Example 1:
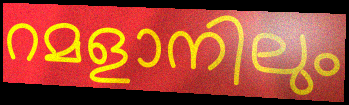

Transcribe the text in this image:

റമളാനിലും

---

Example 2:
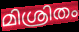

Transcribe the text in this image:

മിശ്രിതം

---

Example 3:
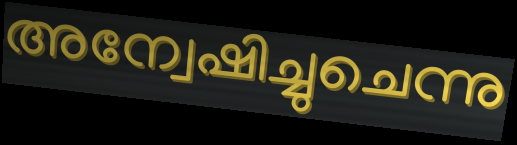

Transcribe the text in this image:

അന്വേഷിച്ചുചെന്നു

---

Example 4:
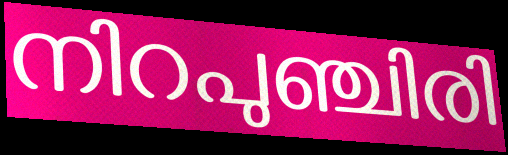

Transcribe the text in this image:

നിറപുഞ്ചിരി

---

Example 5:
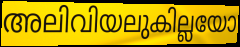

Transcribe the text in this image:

അലിവിയലുകില്ലയോ